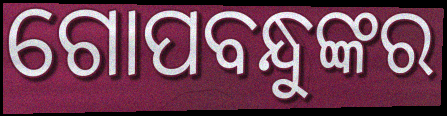
ଗୋପବନ୍ଧୁଙ୍କର